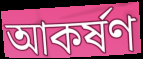
আকৰ্ষণ